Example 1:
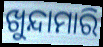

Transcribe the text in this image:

ଖୁନ୍ଦାମାରି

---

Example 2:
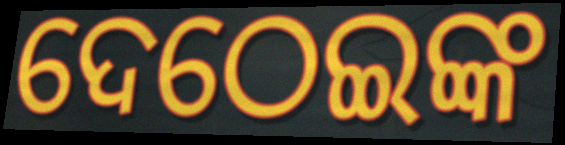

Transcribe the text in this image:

ଦେଠେଇଙ୍କ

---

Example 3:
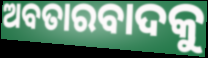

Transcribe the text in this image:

ଅବତାରବାଦକୁ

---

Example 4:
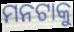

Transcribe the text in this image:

ମନଟାକୁ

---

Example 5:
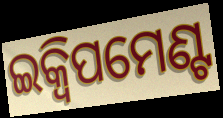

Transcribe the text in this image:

ଇକ୍ୱିପମେଣ୍ଟ